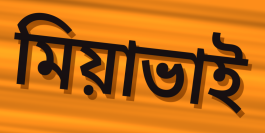
মিয়াভাই